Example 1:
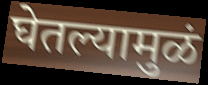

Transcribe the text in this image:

घेतल्यामुळं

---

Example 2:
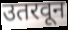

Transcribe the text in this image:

उतरवून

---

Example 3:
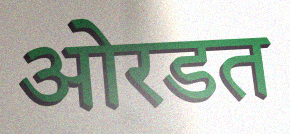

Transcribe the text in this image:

ओरडत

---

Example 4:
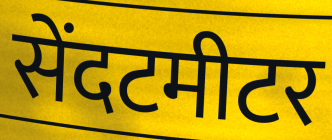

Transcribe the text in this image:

सेंदटमीटर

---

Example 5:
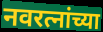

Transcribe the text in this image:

नवरत्नांच्या